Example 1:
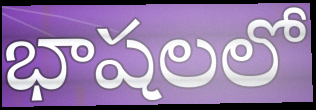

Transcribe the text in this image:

భాషలలో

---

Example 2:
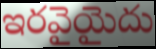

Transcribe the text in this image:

ఇరవైయైదు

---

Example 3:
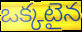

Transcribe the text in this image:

ఒక్కటైన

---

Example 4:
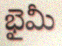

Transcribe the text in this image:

భైమీ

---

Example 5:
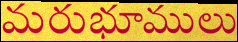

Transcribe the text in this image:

మరుభూములు